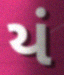
યં